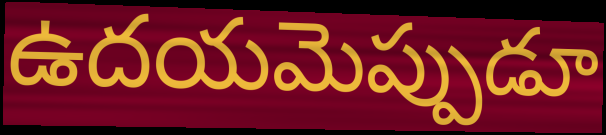
ఉదయమెప్పుడూ